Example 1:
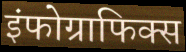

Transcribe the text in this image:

इंफोग्राफिक्स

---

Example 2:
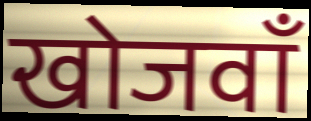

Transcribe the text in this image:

खोजवाँ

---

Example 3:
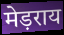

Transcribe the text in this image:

मेड़राय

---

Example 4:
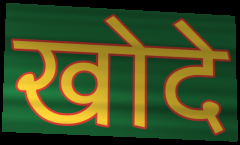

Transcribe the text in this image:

खोदे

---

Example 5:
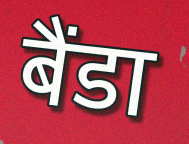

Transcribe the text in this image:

बैंडा